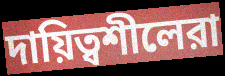
দায়িত্বশীলেরা